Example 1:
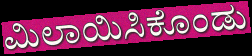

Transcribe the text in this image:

ಮಿಲಾಯಿಸಿಕೊಂಡು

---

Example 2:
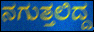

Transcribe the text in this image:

ನಗುತ್ತಲಿದ್ದ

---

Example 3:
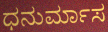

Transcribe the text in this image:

ಧನುರ್ಮಾಸ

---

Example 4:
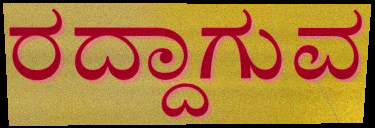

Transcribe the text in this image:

ರದ್ದಾಗುವ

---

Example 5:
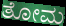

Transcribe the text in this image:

ತೋಮ